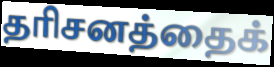
தரிசனத்தைக்